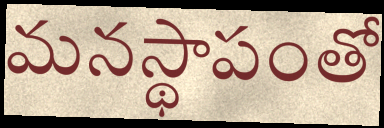
మనస్థాపంతో